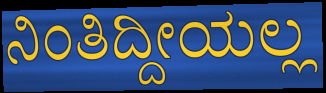
ನಿಂತಿದ್ದೀಯಲ್ಲ